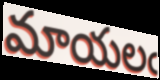
మాయలఁ